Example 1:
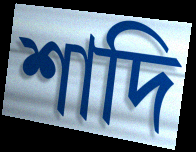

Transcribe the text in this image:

শাদি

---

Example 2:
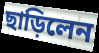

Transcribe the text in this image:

ছাড়িলেন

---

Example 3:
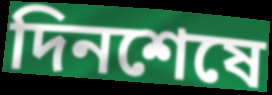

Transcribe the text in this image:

দিনশেষে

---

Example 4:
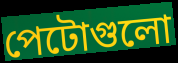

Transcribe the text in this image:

পেটোগুলো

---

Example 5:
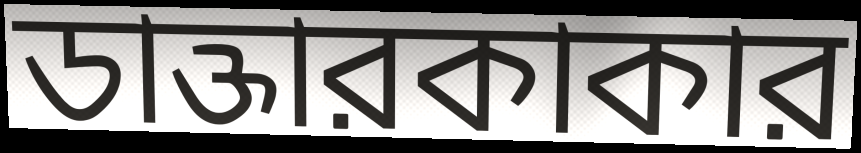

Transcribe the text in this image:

ডাক্তারকাকার